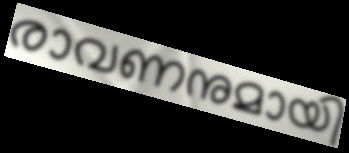
രാവണനുമായി